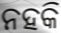
ନହକି